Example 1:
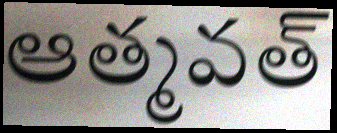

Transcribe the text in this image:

ఆత్మవత్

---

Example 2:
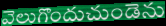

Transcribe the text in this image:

వెలుగొందుచుండెను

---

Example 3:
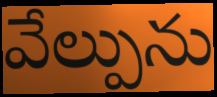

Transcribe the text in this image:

వేల్పును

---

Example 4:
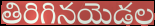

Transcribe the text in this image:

తిరిగినయెడల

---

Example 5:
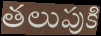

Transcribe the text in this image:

తలుపుకి